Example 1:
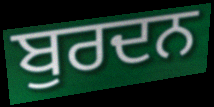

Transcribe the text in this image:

ਬੁਰਦਨ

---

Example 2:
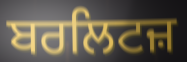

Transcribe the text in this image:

ਬਰਲਿਟਜ਼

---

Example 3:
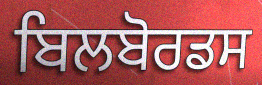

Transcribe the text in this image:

ਬਿਲਬੋਰਡਸ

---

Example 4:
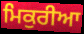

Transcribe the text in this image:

ਮਿਕੁਰੀਆ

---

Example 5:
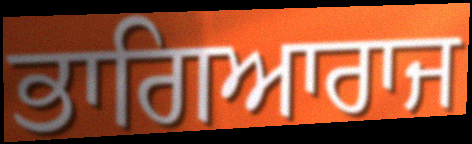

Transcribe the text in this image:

ਭਾਗਿਆਰਾਜ